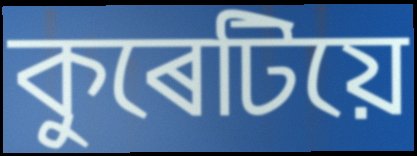
কুৰেটিয়ে